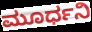
ಮೂರ್ಧನಿ